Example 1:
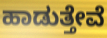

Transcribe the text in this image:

ಹಾಡುತ್ತೇವೆ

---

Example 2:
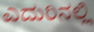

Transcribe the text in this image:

ಎದುರಿನಲ್ಲಿ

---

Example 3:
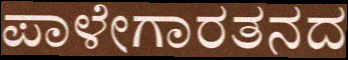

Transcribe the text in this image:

ಪಾಳೇಗಾರತನದ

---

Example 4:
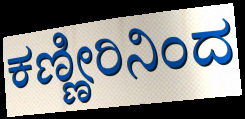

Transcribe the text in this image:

ಕಣ್ಣೀರಿನಿಂದ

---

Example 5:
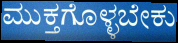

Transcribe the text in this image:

ಮುಕ್ತಗೊಳ್ಳಬೇಕು